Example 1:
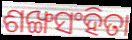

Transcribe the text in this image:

ଶଙ୍ଖସଂହିତା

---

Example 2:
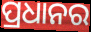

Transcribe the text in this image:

ପ୍ରଧାନର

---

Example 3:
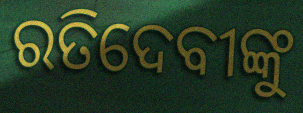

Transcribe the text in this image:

ରତିଦେବୀଙ୍କୁ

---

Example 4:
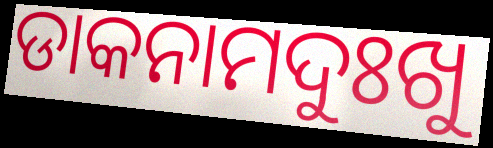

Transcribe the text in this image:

ଡାକନାମଦୁଃଖୁ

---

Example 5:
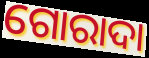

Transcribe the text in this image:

ଗୋରାଦା